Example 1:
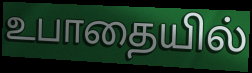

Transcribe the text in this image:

உபாதையில்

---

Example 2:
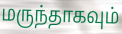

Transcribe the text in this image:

மருந்தாகவும்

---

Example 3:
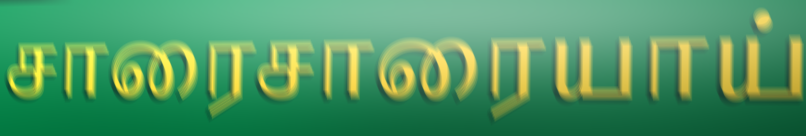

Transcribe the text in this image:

சாரைசாரையாய்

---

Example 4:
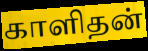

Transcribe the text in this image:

காளிதன்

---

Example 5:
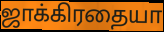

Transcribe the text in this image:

ஜாக்கிரதையா